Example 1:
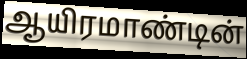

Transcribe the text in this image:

ஆயிரமாண்டின்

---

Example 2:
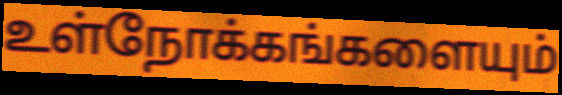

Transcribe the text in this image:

உள்நோக்கங்களையும்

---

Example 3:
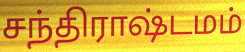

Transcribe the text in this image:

சந்திராஷ்டமம்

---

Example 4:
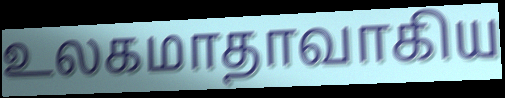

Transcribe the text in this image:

உலகமாதாவாகிய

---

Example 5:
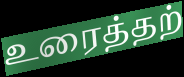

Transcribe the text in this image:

உரைத்தற்